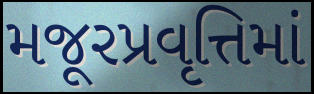
મજૂરપ્રવૃત્તિમાં